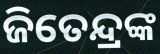
ଜିତେନ୍ଦ୍ରଙ୍କ